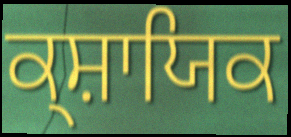
ਕ੍ਸ਼ਾਯਿਕ